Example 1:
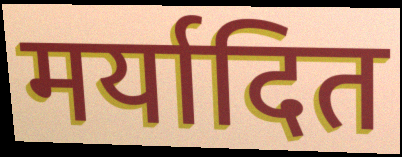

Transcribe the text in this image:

मर्यादित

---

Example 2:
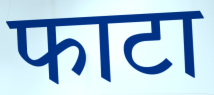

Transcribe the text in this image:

फाटा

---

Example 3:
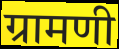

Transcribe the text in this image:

ग्रामणी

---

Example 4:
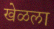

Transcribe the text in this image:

खेळला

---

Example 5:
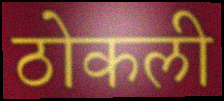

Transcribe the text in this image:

ठोकली